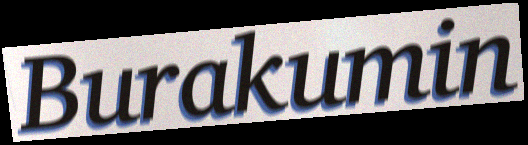
Burakumin